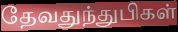
தேவதுந்துபிகள்